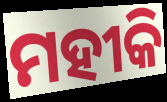
ମହୀକି